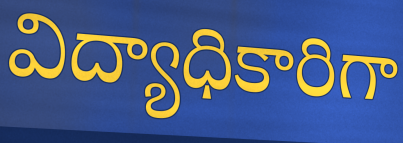
విద్యాధికారిగా